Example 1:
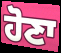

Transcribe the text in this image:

ਹੋਣਾ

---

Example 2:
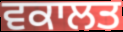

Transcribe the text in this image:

ਵਕਾਲਤ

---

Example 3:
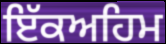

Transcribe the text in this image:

ਇੱਕਅਹਿਮ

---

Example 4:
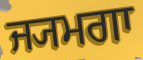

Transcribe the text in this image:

ਜ੍ਯਮਗਾ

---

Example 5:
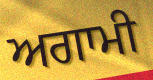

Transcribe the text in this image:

ਅਗਾਮੀ